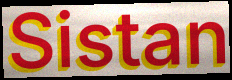
Sistan